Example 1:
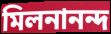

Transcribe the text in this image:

মিলনানন্দ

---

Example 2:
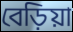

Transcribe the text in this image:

বেড়িয়া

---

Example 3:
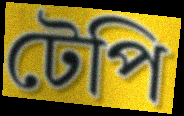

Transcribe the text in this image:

টেপি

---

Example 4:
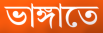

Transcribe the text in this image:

ভাঙ্গাতে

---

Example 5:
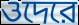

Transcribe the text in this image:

ওদেরে